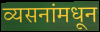
व्यसनांमधून